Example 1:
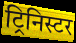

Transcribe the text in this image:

ट्रिनिस्टर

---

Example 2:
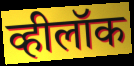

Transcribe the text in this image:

व्हीलॉक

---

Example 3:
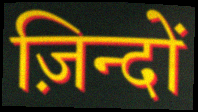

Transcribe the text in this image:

ज़िन्दों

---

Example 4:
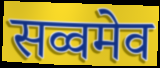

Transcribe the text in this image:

सव्वमेव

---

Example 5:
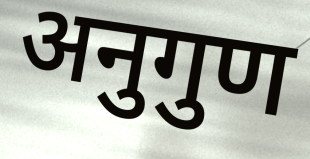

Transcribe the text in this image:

अनुगुण